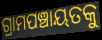
ଗ୍ରାମପଞ୍ଚାୟତକୁ